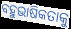
ବହୁଭାଷିକତାକୁ